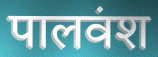
पालवंश